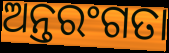
ଅନ୍ତରଂଗତା